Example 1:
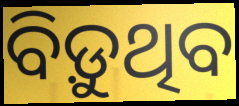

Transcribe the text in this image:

ବିଡ଼ୁଥିବ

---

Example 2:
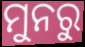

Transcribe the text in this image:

ମୁନରୁ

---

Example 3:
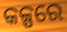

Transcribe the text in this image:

କଳ୍ପରେ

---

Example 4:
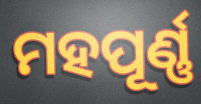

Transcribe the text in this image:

ମହପୂର୍ଣ୍ଣ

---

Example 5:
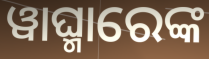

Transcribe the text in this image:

ୱାଘ୍ମାରେଙ୍କ